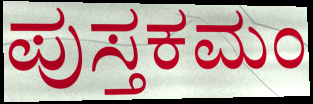
ಪುಸ್ತಕಮಂ